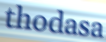
thodasa